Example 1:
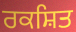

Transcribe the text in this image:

ਰਕਸ਼ਿਤ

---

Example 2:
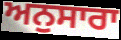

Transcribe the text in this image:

ਅਨੁਸਾਰਾ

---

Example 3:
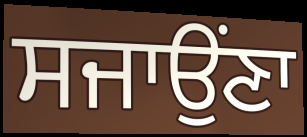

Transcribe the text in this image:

ਸਜਾਉਂਣਾ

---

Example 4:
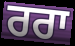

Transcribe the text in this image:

ਰਰਾ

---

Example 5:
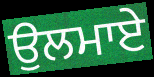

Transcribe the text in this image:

ਉਲਮਾਏ